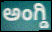
ಅಂಗ್ಡಿ